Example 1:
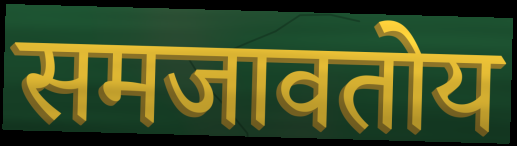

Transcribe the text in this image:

समजावतोय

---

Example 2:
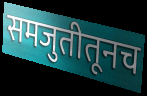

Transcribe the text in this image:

समजुतीतूनच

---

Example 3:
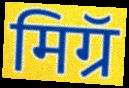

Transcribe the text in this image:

मिग्रॅ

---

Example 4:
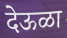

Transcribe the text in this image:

देऊळा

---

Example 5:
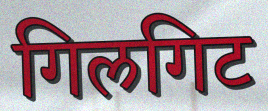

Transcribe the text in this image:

गिलगिट